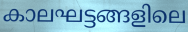
കാലഘട്ടങ്ങളിലെ